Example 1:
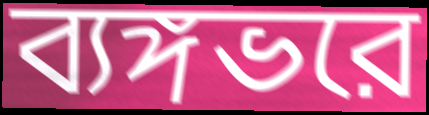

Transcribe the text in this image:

ব্যঙ্গভরে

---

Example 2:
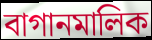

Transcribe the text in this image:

বাগানমালিক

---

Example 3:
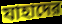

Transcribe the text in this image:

যাহাদের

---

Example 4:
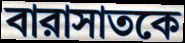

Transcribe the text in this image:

বারাসাতকে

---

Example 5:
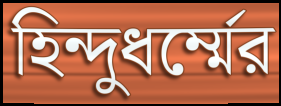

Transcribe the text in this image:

হিন্দুধর্ম্মের